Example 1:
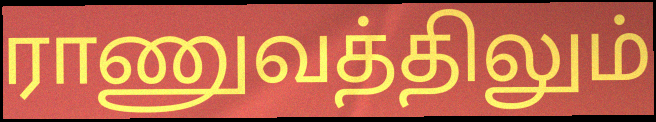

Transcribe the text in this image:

ராணுவத்திலும்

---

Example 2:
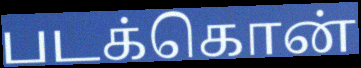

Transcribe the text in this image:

படக்கொன்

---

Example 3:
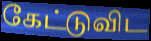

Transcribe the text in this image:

கேட்டுவிட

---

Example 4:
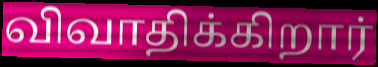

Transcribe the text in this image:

விவாதிக்கிறார்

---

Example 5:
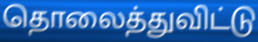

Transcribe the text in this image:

தொலைத்துவிட்டு